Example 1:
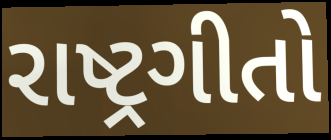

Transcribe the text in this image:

રાષ્ટ્રગીતો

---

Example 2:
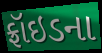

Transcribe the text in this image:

ફ્રૉઇડના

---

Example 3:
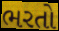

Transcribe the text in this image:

ભરતો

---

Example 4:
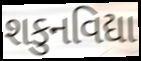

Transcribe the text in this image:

શકુનવિદ્યા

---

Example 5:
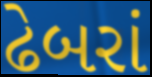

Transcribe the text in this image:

ઢેબરાં